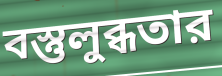
বস্তুলুব্ধতার